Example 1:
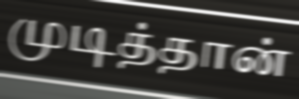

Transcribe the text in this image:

முடித்தான்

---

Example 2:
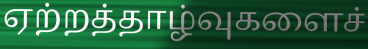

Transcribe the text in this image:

ஏற்றத்தாழ்வுகளைச்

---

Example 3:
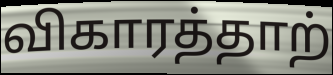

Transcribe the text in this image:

விகாரத்தாற்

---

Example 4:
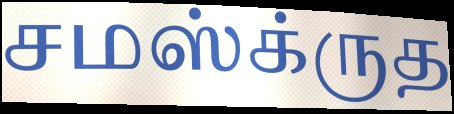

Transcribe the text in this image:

சமஸ்க்ருத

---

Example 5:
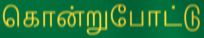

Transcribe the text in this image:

கொன்றுபோட்டு